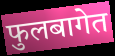
फुलबागेत